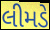
લીમડે